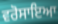
ਵਰੋਸਾਇਆ